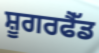
ਸ਼ੂਗਰਫੈੱਡ